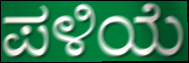
ಪಳಿಯೆ